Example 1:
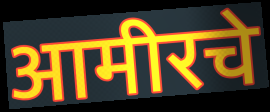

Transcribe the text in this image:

आमीरचे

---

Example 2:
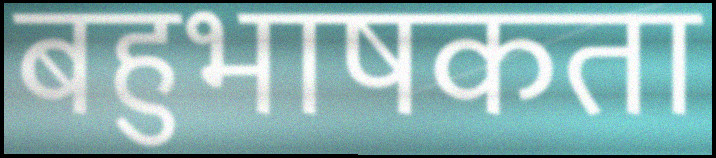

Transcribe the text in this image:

बहुभाषकता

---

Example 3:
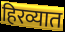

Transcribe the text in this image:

हिरव्यात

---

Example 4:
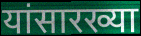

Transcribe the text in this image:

यांसारख्या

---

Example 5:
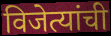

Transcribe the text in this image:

विजेत्यांची